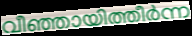
വീഞ്ഞായിത്തീർന്ന